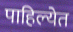
पाहिल्येत